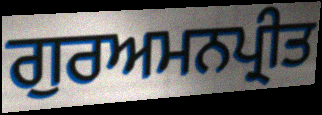
ਗੁਰਅਮਨਪ੍ਰੀਤ